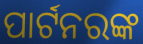
ପାର୍ଟନରଙ୍କ